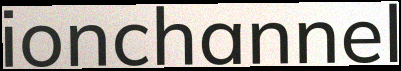
ionchannel